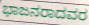
ಭಾಜನರಾದವರ